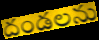
దండలను